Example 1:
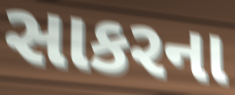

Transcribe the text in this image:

સાકરના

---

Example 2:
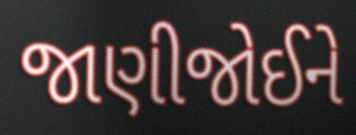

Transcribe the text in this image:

જાણીજોઈને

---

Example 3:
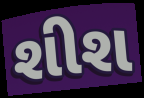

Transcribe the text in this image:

શીશ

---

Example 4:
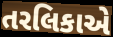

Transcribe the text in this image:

તરલિકાએ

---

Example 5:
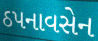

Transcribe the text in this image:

ઠપનાવસેન